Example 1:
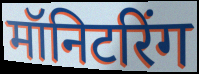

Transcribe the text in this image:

मॉनिटरिंग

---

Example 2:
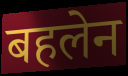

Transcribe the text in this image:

बहलेन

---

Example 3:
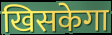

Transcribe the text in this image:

खिसकेगा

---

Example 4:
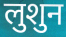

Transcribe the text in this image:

लुशुन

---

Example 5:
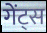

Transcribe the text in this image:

गेंट्स